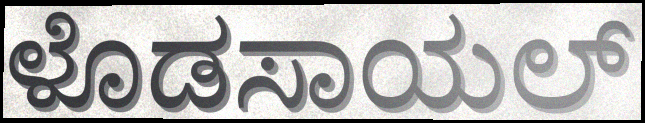
ಳೊಡಸಾಯಲ್